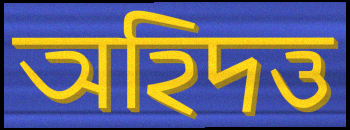
অহিদত্ত